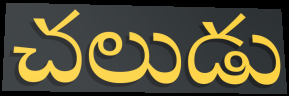
చలుడు